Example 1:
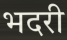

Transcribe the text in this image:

भदरी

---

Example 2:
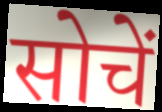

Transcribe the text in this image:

सोचें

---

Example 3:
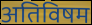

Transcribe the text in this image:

अतिविषम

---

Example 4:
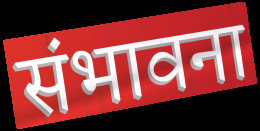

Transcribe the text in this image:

संभावना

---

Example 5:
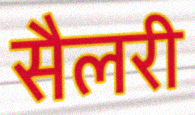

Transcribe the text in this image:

सैलरी